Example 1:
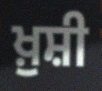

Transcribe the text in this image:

ਖ਼ੁਸ਼ੀ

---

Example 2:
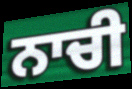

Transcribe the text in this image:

ਨਾਚੀ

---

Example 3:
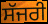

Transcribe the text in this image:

ਸੱਜਰੀ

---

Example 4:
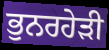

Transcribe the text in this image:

ਭੁਨਰਹੇੜੀ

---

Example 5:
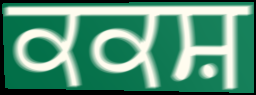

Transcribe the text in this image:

ਕਕਸ਼